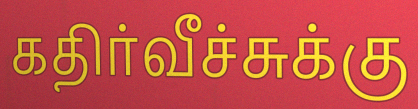
கதிர்வீச்சுக்கு